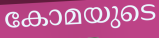
കോമയുടെ